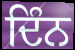
ਦਿੰਨ